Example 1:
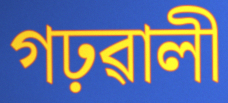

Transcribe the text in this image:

গঢ়ৱালী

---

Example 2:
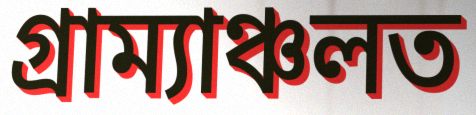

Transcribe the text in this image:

গ্ৰাম্যাঞ্চলত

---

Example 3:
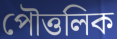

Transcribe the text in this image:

পৌত্তলিক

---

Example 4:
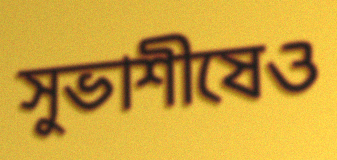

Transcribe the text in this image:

সুভাশীষেও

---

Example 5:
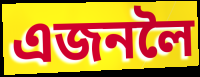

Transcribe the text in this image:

এজনলৈ